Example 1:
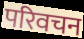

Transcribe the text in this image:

परिवचन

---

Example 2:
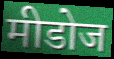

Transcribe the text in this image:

मीडोज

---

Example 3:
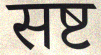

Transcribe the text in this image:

सष्ट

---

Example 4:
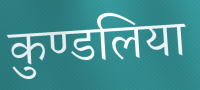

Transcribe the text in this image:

कुण्डलिया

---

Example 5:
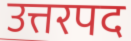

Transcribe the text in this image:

उत्तरपद